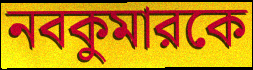
নবকুমারকে